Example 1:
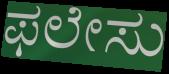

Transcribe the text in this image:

ಫಲೇಸು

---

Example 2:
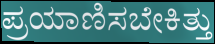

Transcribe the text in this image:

ಪ್ರಯಾಣಿಸಬೇಕಿತ್ತು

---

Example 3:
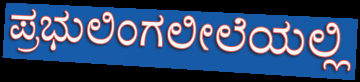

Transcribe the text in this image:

ಪ್ರಭುಲಿಂಗಲೀಲೆಯಲ್ಲಿ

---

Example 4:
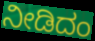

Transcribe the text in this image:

ನೀಡಿದಂ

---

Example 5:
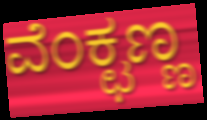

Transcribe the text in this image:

ವೆಂಕ್ಟಣ್ಣ